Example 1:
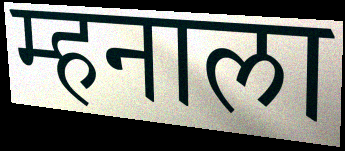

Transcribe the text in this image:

म्हनाला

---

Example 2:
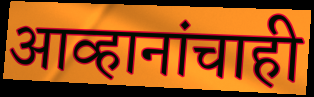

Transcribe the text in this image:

आव्हानांचाही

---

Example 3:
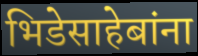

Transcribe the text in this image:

भिडेसाहेबांना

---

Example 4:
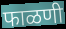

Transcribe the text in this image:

फाळणी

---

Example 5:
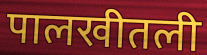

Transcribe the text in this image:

पालखीतली